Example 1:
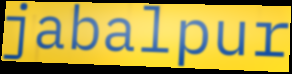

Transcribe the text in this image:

jabalpur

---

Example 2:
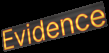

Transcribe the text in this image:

Evidence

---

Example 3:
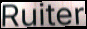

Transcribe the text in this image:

Ruiter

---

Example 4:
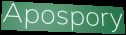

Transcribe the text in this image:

Apospory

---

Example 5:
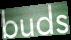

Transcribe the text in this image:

buds